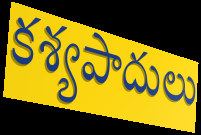
కశ్యపాదులు